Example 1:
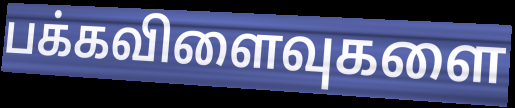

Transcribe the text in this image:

பக்கவிளைவுகளை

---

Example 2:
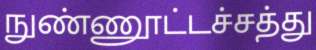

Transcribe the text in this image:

நுண்ணூட்டச்சத்து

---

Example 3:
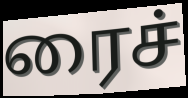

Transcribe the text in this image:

ரைச்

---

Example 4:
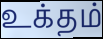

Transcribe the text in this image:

உக்தம்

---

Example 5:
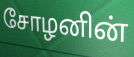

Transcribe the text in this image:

சோழனின்